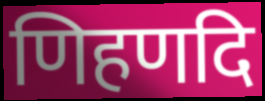
णिहणदि